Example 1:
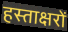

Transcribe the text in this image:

हस्ताक्षरों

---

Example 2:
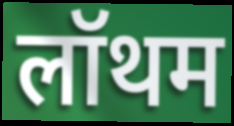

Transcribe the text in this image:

लॉथम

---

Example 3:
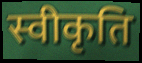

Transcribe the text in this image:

स्वीकृति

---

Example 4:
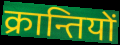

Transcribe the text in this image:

क्रान्तियों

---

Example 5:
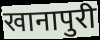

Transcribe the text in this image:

खानापुरी